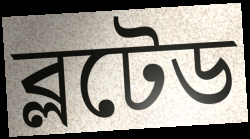
ব্লটেড